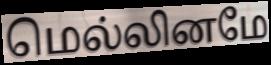
மெல்லினமே